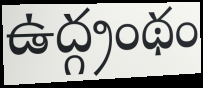
ఉద్గ్రంథం